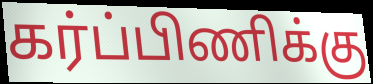
கர்ப்பிணிக்கு